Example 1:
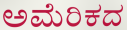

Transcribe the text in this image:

ಅಮೆರಿಕದ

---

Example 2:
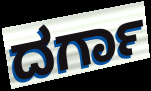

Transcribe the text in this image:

ದರ್ಗಾ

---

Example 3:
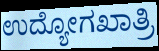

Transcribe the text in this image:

ಉದ್ಯೋಗಖಾತ್ರಿ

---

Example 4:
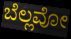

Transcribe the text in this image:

ಬೆಲ್ಲವೋ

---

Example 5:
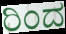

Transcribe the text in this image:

ರಿಂದ